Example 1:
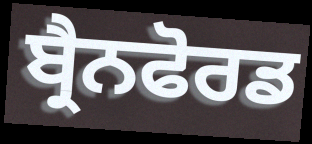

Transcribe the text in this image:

ਬ੍ਰੈਨਫੋਰਡ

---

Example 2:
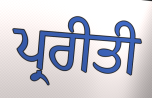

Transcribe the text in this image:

ਪ੍ਰਰੀਤੀ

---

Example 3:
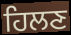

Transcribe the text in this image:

ਹਿਲਣ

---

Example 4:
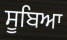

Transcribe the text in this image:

ਸੂਬਿਆ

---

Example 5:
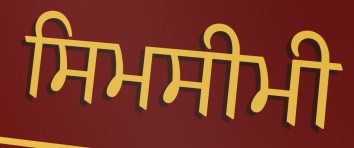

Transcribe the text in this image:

ਸਿਮਸੀਮੀ